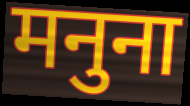
मनुना